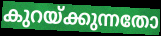
കുറയ്ക്കുന്നതോ